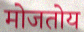
मोजतोय